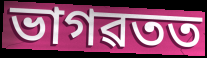
ভাগৱতত